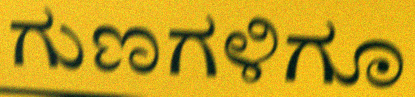
ಗುಣಗಳಿಗೂ